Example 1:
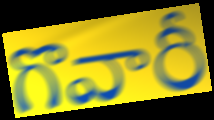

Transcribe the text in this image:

గొవారీ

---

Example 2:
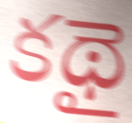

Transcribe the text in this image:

కథై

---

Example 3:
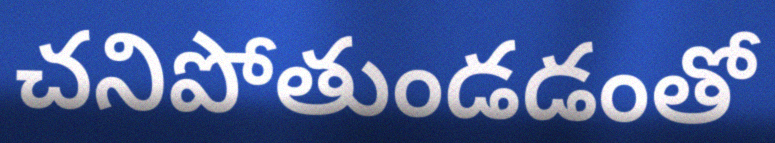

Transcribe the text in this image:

చనిపోతుండడంతో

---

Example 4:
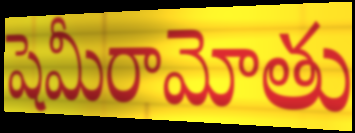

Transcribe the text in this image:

షెమీరామోతు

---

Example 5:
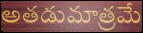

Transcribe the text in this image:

అతడుమాత్రమే